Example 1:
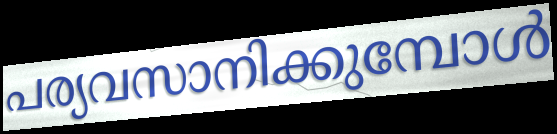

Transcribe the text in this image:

പര്യവസാനിക്കുമ്പോൾ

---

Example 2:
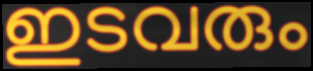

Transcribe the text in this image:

ഇടവരും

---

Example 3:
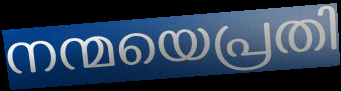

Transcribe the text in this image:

നന്മയെപ്രതി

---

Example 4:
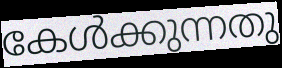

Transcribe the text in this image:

കേൾക്കുന്നതു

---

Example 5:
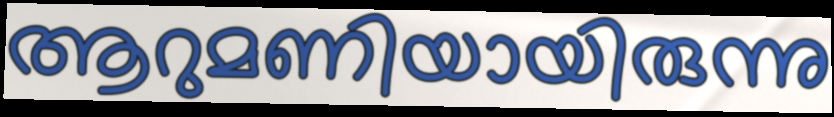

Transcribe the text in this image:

ആറുമണിയായിരുന്നു